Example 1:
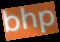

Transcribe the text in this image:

bhp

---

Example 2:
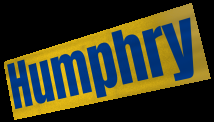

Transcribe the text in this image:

Humphry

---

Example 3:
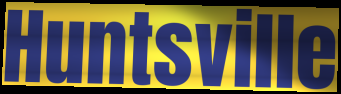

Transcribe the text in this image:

Huntsville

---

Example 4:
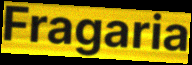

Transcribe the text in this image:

Fragaria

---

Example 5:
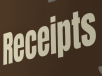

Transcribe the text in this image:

Receipts